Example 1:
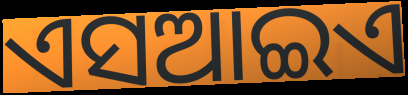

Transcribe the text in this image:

ଏସଆଇଏ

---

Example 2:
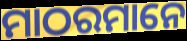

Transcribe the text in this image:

ମାଠରମାନେ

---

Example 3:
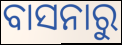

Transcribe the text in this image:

ବାସନାରୁ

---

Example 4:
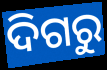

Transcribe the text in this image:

ଦିଗରୁ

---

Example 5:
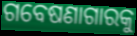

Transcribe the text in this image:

ଗବେଷଣାଗାରକୁ